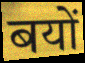
बयों